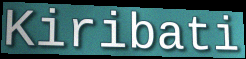
Kiribati